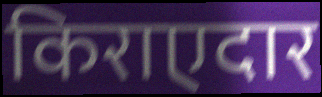
किराएदार